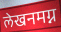
लेखनमग्न